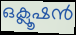
ഒക്ലൂഷൻ